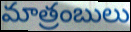
మాత్రంబులు